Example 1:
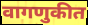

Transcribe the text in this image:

वागणुकीत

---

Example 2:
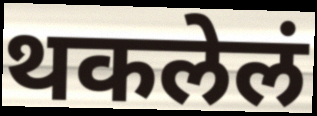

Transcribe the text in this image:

थकलेलं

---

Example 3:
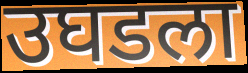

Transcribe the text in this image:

उघडला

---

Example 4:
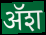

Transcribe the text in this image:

ॲश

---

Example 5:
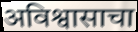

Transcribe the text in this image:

अविश्वासाचा